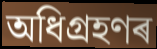
অধিগ্ৰহণৰ